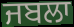
ਜਬਲਾ